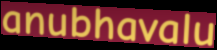
anubhavalu